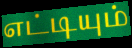
எட்டியும்